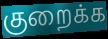
குறைக்க